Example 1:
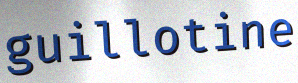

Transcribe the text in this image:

guillotine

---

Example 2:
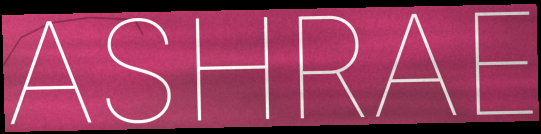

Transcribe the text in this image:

ASHRAE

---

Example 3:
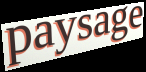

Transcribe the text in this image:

paysage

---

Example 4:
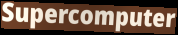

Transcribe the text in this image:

Supercomputer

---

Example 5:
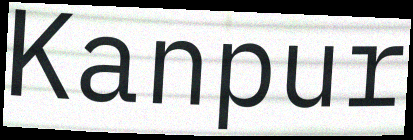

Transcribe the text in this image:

Kanpur